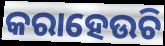
କରାହେଉଚି